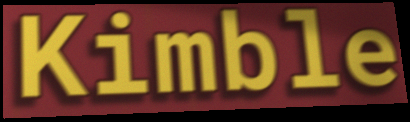
Kimble